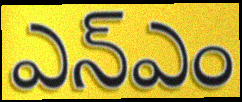
ఎన్ఎం